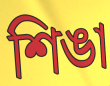
শিঙা